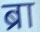
ब्रा